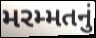
મરમ્મતનું